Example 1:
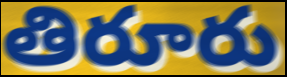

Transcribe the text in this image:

తిరూరు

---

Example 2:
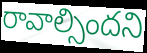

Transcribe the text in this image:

రావాల్సిందని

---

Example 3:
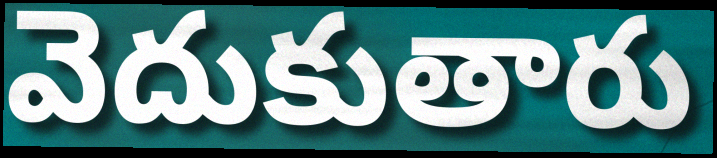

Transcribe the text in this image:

వెదుకుతారు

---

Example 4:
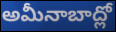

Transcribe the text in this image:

అమీనాబాద్లో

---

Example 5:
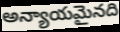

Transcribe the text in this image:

అన్యాయమైనది